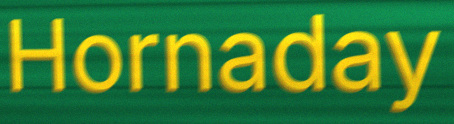
Hornaday